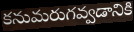
కనుమరుగవ్వడానికి